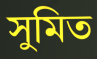
সুমিত